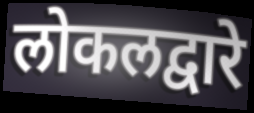
लोकलद्वारे